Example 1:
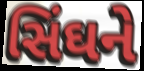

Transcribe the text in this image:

સિંઘને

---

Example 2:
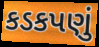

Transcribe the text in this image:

કડકપણું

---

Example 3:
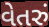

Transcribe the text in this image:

વેતરું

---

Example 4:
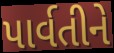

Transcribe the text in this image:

પાર્વતીને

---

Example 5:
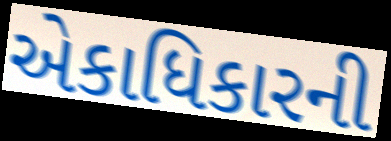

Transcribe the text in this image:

એકાધિકારની